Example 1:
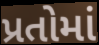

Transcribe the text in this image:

પ્રતોમાં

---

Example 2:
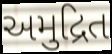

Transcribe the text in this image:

અમુદ્રિત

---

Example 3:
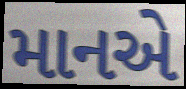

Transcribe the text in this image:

માનએ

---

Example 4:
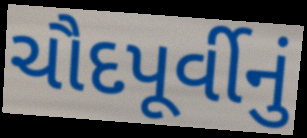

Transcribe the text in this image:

ચૌદપૂર્વીનું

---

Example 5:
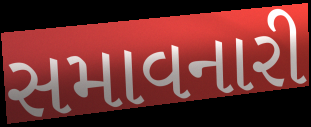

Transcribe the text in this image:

સમાવનારી